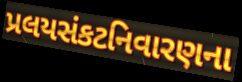
પ્રલયસંકટનિવારણના